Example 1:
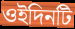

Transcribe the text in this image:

ওইদিনটি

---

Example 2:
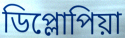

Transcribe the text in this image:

ডিপ্লোপিয়া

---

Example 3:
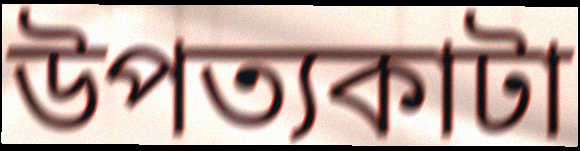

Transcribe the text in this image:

উপত্যকাটা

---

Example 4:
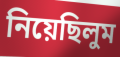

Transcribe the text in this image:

নিয়েছিলুম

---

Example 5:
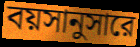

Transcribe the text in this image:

বয়সানুসারে